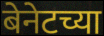
बेनेटच्या